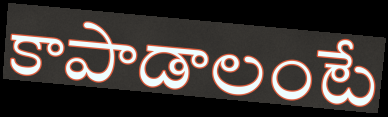
కాపాడాలంటే